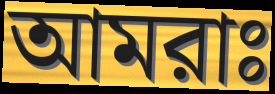
আমরাঃ